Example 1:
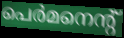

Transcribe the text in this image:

പെർമനെന്റ്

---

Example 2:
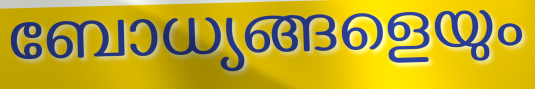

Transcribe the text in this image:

ബോധ്യങ്ങളെയും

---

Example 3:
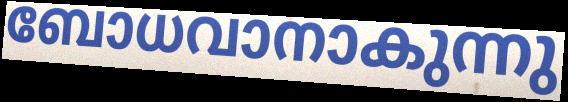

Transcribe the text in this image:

ബോധവാനാകുന്നു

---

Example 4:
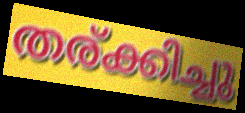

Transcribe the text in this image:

തര്ക്കിച്ചു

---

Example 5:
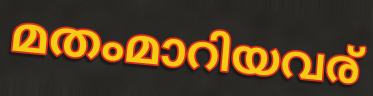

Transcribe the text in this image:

മതംമാറിയവര്